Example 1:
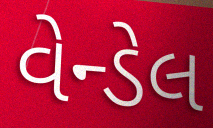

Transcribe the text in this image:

વેન્ડેલ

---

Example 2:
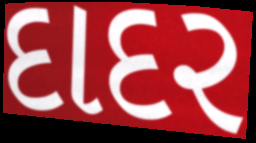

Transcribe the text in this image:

દાદર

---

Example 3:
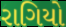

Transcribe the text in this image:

રાગિયો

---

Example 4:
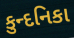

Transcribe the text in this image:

કુન્દનિકા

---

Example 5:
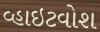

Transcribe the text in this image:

વ્હાઇટવોશ